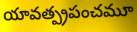
యావత్ప్రపంచమూ